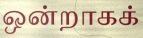
ஒன்றாகக்